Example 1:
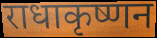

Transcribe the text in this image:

राधाकृष्णन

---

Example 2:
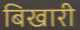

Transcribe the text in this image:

बिखारी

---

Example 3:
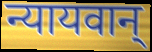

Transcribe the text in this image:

न्यायवान्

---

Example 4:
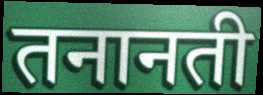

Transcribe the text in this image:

तनानती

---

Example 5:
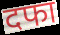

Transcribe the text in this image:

दफा